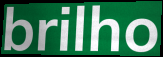
brilho